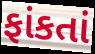
ફાંકતાં